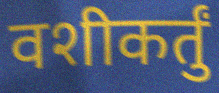
वशीकर्तुं